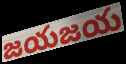
జయజయ